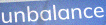
unbalance